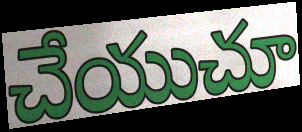
చేయుచూ